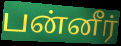
பன்னீர்